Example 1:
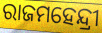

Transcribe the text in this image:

ରାଜମହେନ୍ଦ୍ରୀ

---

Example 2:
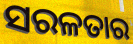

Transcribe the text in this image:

ସରଳତାର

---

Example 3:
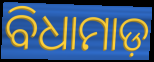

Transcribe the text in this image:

ବିଧାମାଡ଼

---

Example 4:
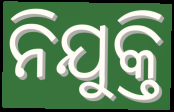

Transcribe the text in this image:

ନିଯୁକ୍ତି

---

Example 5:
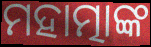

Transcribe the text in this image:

ମହାତ୍ମାଙ୍କ